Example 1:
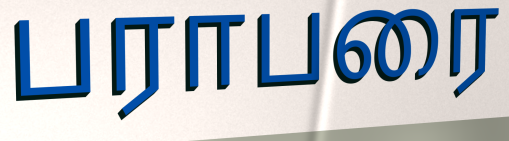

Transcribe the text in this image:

பராபரை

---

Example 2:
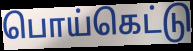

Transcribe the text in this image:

பொய்கெட்டு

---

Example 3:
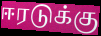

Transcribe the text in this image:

ஈரடுக்கு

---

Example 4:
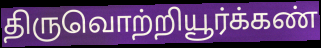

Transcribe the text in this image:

திருவொற்றியூர்க்கண்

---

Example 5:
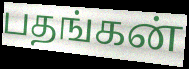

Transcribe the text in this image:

பதங்கன்